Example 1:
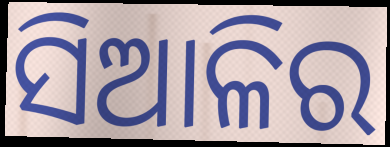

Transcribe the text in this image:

ସିଆଳିର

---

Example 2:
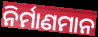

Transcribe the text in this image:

ନିର୍ମାଣମାନ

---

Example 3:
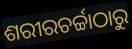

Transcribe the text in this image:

ଶରୀରଚର୍ଚ୍ଚାଠାରୁ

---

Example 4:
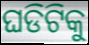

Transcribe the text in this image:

ଘଡିଟିକୁ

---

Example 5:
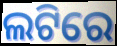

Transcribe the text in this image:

ଲଟିରେ